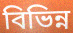
বিভিন্ন